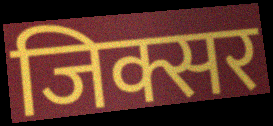
जिक्सर